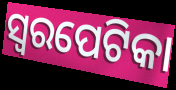
ସ୍ୱରପେଟିକା